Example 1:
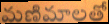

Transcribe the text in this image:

మణిమాలతో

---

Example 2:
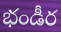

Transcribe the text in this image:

భండీర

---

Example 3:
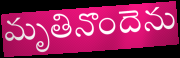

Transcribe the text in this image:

మృతినొందెను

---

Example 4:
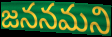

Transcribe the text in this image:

జననమని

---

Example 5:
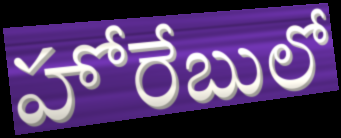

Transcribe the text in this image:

హోరేబులో